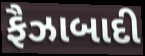
ફૈઝાબાદી